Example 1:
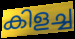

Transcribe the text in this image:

കിളച്ച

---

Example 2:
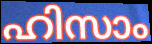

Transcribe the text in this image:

ഹിസാം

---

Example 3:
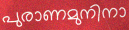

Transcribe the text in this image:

പുരാണമുനിനാ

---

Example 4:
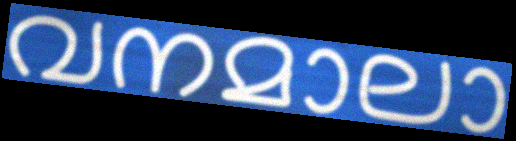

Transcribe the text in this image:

വനമാലാ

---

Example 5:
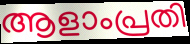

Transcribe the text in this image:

ആളാംപ്രതി